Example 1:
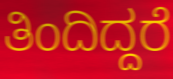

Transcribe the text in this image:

ತಿಂದಿದ್ದರೆ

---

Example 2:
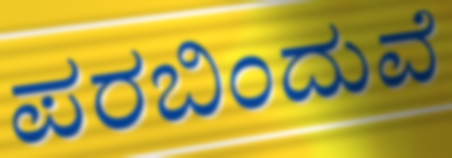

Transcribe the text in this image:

ಪರಬಿಂದುವೆ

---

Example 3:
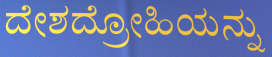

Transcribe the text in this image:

ದೇಶದ್ರೋಹಿಯನ್ನು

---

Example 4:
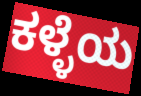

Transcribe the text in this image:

ಕಳ್ಳೆಯ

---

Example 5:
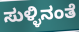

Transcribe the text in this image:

ಸುಳ್ಳಿನಂತೆ